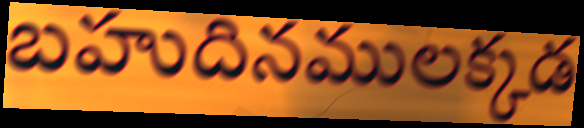
బహుదినములక్కడ